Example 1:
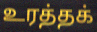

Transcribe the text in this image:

உரத்தக்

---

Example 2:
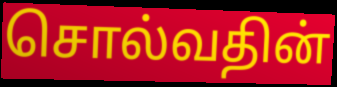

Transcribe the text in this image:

சொல்வதின்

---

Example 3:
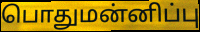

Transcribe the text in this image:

பொதுமன்னிப்பு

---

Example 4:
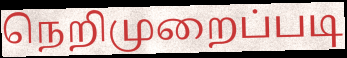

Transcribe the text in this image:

நெறிமுறைப்படி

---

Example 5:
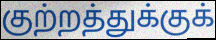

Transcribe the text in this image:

குற்றத்துக்குக்